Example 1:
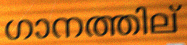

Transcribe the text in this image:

ഗാനത്തില്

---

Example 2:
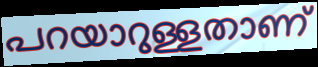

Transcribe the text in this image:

പറയാറുള്ളതാണ്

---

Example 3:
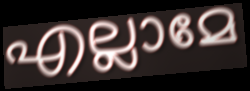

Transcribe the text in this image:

എല്ലാമേ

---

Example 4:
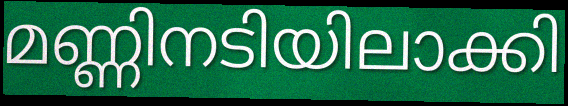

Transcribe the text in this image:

മണ്ണിനടിയിലാക്കി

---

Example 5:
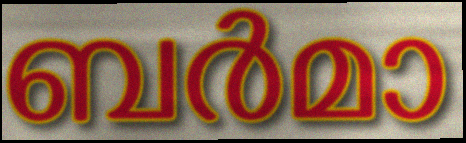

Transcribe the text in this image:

ബർമാ